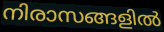
നിരാസങ്ങളിൽ